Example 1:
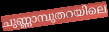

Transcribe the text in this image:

ചുണ്ണാമ്പുതറയിലെ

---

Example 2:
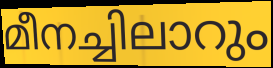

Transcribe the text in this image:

മീനച്ചിലാറും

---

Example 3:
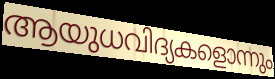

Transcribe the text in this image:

ആയുധവിദ്യകളൊന്നും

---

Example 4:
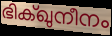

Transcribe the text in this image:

ഭിക്ഖുനീനം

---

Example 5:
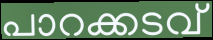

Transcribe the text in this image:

പാറക്കടവ്